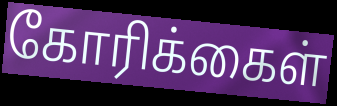
கோரிக்கைள்